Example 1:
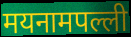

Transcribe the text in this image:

मयनामपल्ली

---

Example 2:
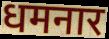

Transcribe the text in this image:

धमनार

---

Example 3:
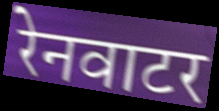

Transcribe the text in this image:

रेनवाटर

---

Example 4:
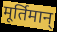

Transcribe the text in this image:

मूर्तिमान्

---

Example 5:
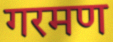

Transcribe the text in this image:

गरमण